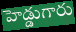
హెడ్డుగారు